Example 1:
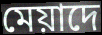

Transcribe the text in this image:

মেয়াদে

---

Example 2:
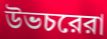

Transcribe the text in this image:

উভচরেরা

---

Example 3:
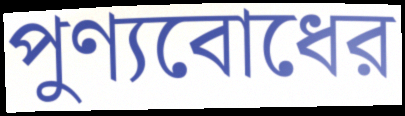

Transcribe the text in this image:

পুণ্যবোধের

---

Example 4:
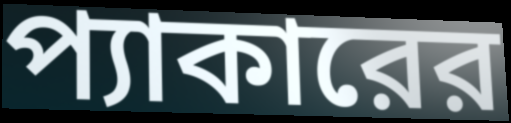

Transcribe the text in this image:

প্যাকারের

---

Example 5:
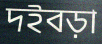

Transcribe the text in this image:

দইবড়া